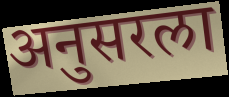
अनुसरला